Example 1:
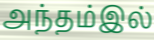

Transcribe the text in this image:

அந்தம்இல்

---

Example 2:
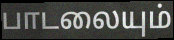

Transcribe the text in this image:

பாடலையும்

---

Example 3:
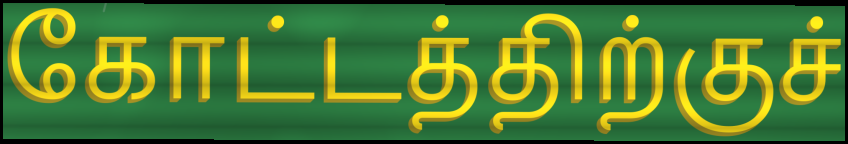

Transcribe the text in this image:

கோட்டத்திற்குச்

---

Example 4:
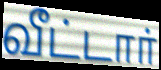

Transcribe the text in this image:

வீட்டார்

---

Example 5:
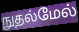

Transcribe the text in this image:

நுதல்மேல்